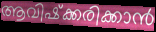
ആവിഷ്‌ക്കരിക്കാൻ